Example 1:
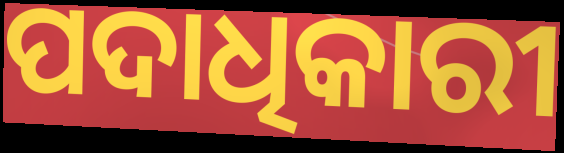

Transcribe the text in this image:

ପଦାଧିକାରୀ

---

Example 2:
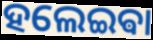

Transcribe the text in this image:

ହଲେଇଵା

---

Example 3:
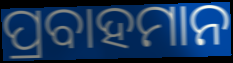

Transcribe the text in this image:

ପ୍ରବାହମାନ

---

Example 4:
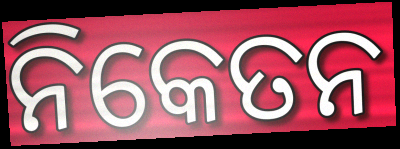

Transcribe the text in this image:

ନିକେତନ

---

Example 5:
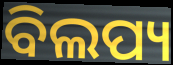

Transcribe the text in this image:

ବିଲପ୍ୟ